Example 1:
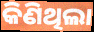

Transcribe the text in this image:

କିଣିଥିଲା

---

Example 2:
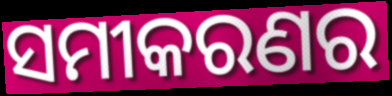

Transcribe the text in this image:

ସମୀକରଣର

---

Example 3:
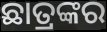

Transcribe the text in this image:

ଛାତ୍ରଙ୍କର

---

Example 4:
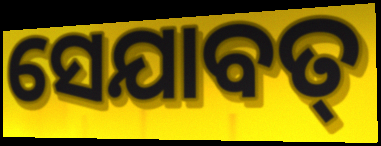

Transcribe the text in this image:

ସେଯାବତ୍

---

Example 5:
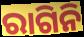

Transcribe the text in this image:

ରାଗିନି